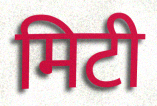
मिटी